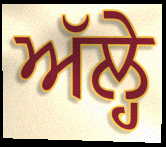
ਅੱਲ੍ਹੇ